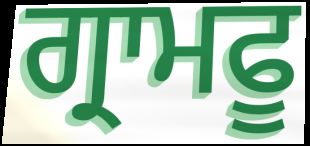
ਗ੍ਰਾਮਫੂ